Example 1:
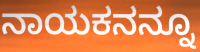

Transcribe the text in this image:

ನಾಯಕನನ್ನೂ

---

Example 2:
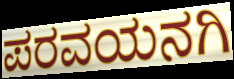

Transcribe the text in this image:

ಪರವಯನಗಿ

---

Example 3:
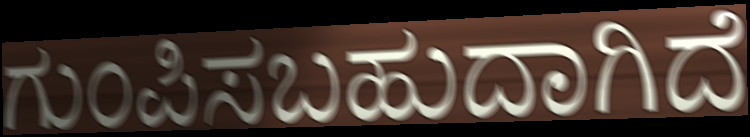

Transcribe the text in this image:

ಗುಂಪಿಸಬಹುದಾಗಿದೆ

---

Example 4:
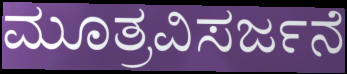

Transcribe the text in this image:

ಮೂತ್ರವಿಸರ್ಜನೆ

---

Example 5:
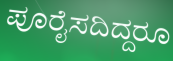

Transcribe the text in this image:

ಪೂರೈಸದಿದ್ದರೂ